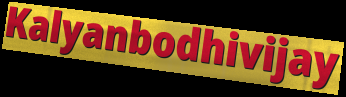
Kalyanbodhivijay